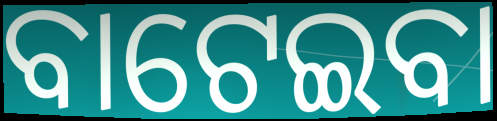
ବାଟେଇବା